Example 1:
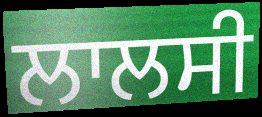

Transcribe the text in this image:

ਲਾਲਸੀ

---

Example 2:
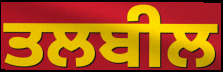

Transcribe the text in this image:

ਤਲਬੀਲ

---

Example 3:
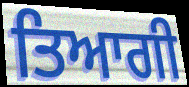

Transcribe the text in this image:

ਤਿਆਗੀ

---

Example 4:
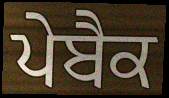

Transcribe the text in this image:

ਪੇਬੈਕ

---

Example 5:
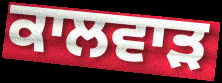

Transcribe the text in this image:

ਕਾਲਵਾੜ